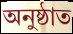
অনুষ্ঠাত